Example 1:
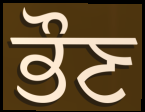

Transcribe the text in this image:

ਭੌਣ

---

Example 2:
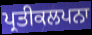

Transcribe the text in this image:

ਪ੍ਰਤੀਕਲਪਨਾ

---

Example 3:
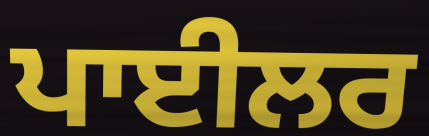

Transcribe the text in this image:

ਪਾਈਲਰ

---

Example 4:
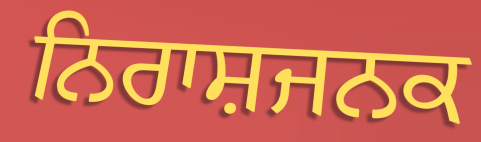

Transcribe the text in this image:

ਨਿਰਾਸ਼ਜਨਕ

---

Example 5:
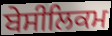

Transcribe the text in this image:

ਬੇਸੀਲਿਕਮ